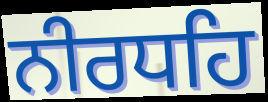
ਨੀਰਧਹਿ